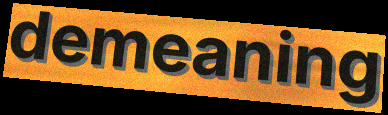
demeaning